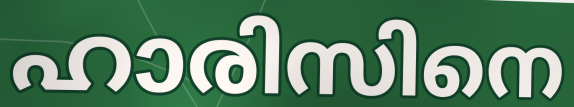
ഹാരിസിനെ